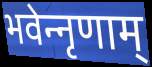
भवेन्नृणाम्